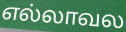
எல்லாவல